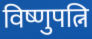
विष्णुपत्नि